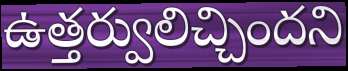
ఉత్తర్వులిచ్చిందని